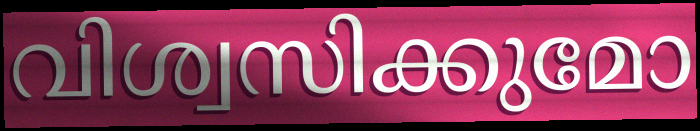
വിശ്വസിക്കുമോ